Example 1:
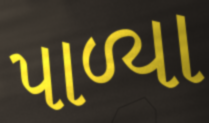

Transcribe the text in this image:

પાળ્યા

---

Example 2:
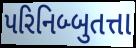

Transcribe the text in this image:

પરિનિબ્બુતત્તા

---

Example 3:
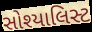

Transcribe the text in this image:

સોશ્યાલિસ્ટ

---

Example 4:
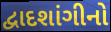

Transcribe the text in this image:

દ્વાદશાંગીનો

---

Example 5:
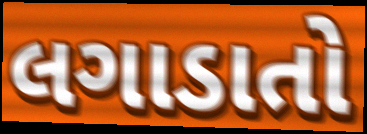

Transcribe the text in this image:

લગાડાતો